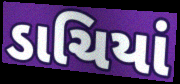
ડાચિયાં